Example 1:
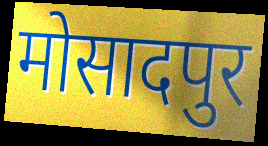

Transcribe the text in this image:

मोसादपुर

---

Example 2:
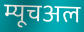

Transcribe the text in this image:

म्यूचअल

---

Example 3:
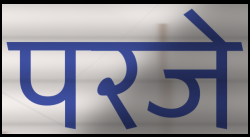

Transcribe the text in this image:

परजे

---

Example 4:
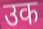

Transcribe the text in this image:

उक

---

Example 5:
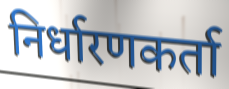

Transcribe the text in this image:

निर्धारणकर्ता